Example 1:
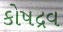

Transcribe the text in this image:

કોષદ્રવ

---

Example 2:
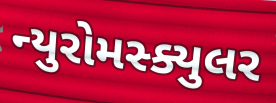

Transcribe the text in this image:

ન્યુરોમસ્ક્યુલર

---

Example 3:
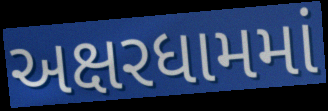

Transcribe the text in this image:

અક્ષરધામમાં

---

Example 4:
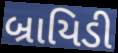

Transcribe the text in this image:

બ્રાયિડી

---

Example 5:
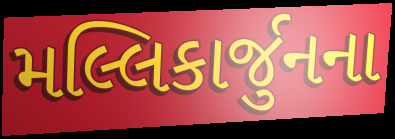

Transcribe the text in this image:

મલ્લિકાર્જુનના